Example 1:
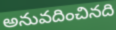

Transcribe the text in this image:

అనువదించినది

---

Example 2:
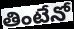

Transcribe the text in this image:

తింటేనో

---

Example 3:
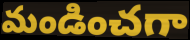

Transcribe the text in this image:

మండించగా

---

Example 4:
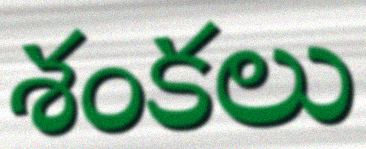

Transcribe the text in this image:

శంకలు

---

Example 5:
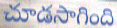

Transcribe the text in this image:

చూడసాగింది